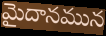
మైదానమున